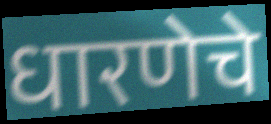
धारणेचे